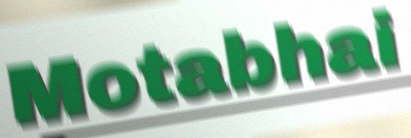
Motabhai